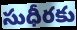
సుధీరకు